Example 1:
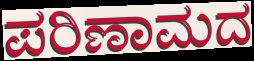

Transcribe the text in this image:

ಪರಿಣಾಮದ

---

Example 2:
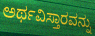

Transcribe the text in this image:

ಅರ್ಥವಿಸ್ತಾರವನ್ನು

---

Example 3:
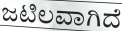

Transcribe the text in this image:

ಜಟಿಲವಾಗಿದೆ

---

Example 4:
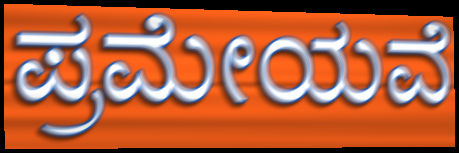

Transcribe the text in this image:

ಪ್ರಮೇಯವೆ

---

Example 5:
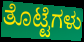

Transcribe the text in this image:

ತೊಟ್ಟೆಗಳು